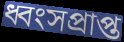
ধ্বংসপ্ৰাপ্ত